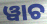
ୱାଚ